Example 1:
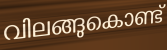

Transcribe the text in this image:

വിലങ്ങുകൊണ്ട്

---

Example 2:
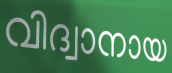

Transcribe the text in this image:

വിദ്വാനായ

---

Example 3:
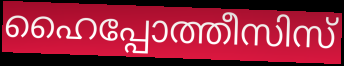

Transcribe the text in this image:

ഹൈപ്പോത്തീസിസ്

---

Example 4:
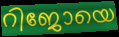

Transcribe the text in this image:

റിജോയെ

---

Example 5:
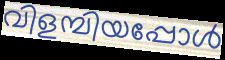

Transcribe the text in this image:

വിളമ്പിയപ്പോൾ